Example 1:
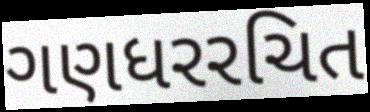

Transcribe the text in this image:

ગણધરરચિત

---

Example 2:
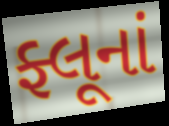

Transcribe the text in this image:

ફ્લૂનાં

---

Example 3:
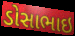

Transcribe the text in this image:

ડોસાભાઇ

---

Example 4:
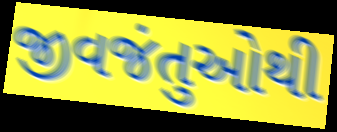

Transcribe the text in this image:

જીવજંતુઓથી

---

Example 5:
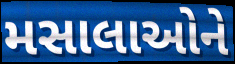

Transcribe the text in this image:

મસાલાઓને